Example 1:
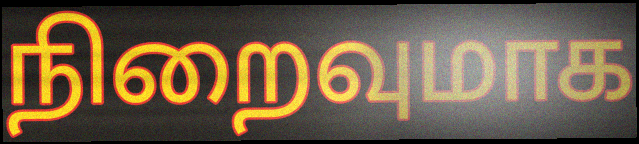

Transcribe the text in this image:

நிறைவுமாக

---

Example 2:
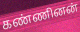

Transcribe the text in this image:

கண்ணினன்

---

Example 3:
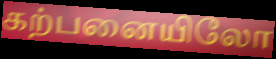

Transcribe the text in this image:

கற்பனையிலோ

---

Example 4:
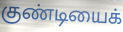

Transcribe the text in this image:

குண்டியைக்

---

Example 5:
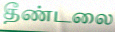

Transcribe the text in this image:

தீண்டலை